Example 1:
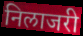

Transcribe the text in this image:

निलाजरी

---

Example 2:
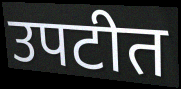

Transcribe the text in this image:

उपटीत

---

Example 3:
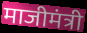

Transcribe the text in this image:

माजीमंत्री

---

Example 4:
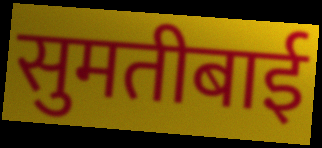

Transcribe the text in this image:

सुमतीबाई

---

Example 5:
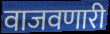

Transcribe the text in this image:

वाजवणारी